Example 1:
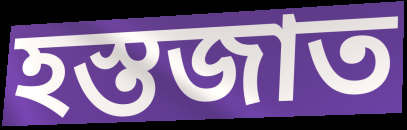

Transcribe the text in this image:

হস্তজাত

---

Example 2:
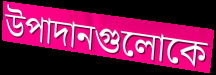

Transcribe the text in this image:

উপাদানগুলোকে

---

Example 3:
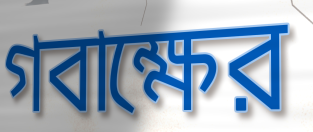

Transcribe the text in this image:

গবাক্ষের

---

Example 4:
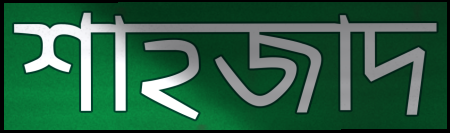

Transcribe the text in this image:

শাহজাদ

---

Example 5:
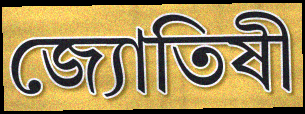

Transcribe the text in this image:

জ্যোতিষী